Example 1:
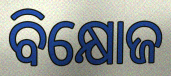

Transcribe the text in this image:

ବିକ୍ଷୋଜ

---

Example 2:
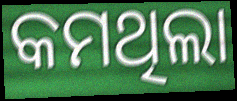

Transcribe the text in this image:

କମଥିଲା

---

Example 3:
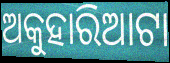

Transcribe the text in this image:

ଅକୁହାରିଆଟା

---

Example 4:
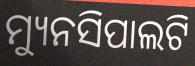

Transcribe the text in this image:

ମ୍ୟୁନସିପାଲଟି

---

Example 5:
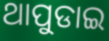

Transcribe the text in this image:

ଥାପୁଡାଇ